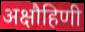
अक्षौहिणी